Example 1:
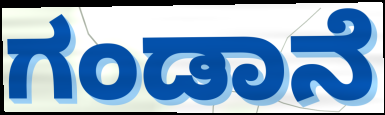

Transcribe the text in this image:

ಗಂಡಾನೆ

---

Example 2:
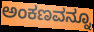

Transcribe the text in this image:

ಅಂಕಣವನ್ನೂ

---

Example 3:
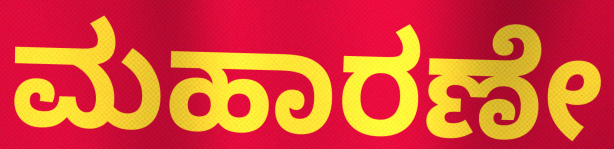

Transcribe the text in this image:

ಮಹಾರಣೇ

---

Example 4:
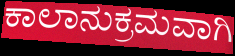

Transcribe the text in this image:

ಕಾಲಾನುಕ್ರಮವಾಗಿ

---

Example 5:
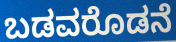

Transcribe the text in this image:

ಬಡವರೊಡನೆ